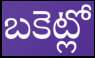
బకెట్లో